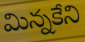
మిన్నకేని